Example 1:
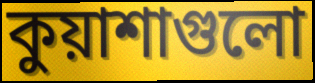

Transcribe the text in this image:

কুয়াশাগুলো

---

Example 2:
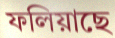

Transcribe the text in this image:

ফলিয়াছে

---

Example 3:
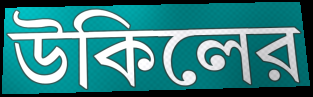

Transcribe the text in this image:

উকিলের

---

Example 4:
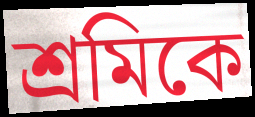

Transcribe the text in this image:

শ্রমিকে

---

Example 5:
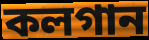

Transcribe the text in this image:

কলগান